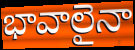
భావాలైనా